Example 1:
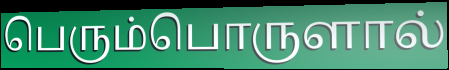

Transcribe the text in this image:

பெரும்பொருளால்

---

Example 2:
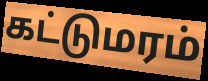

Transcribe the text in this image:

கட்டுமரம்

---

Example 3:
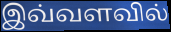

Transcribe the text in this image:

இவ்வளவில்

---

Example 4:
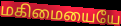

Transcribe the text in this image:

மகிமையையே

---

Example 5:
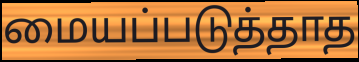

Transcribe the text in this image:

மையப்படுத்தாத